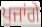
ਪੁਜਾਂਗੇ